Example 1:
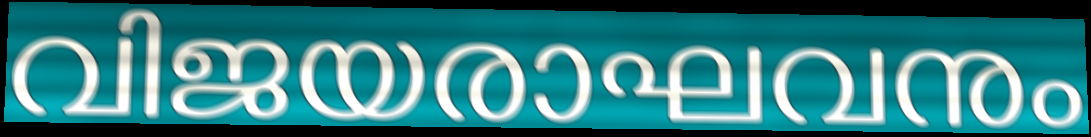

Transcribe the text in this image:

വിജയരാഘവനും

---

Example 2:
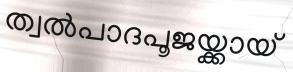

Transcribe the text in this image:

ത്വൽപാദപൂജയ്ക്കായ്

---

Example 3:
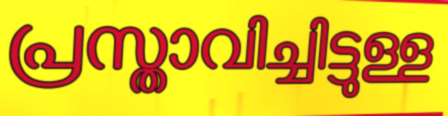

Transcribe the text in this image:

പ്രസ്താവിച്ചിട്ടുള്ള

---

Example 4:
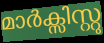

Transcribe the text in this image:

മാർക്സിസ്റ്റു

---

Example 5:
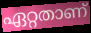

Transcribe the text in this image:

ഏറ്റതാണ്